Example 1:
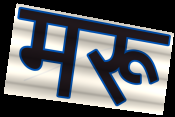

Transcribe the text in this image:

मरू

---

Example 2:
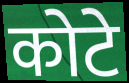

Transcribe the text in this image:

कोटे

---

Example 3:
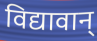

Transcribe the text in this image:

विद्यावान्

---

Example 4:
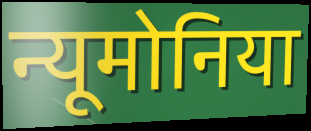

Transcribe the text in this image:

न्यूमोनिया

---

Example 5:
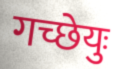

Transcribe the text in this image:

गच्छेयुः